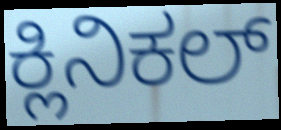
ಕ್ಲಿನಿಕಲ್